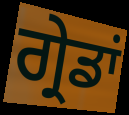
ਗ੍ਰੇਡਾਂ